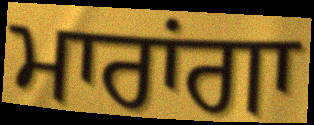
ਮਾਰਾਂਗਾ